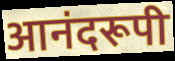
आनंदरूपी